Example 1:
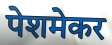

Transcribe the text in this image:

पेशमेकर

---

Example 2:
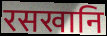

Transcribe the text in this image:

रसखानि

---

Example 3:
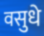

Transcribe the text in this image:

वसुधे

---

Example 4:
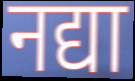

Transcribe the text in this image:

नद्या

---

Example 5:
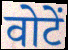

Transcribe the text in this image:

वोटें